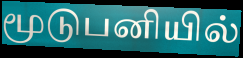
மூடுபனியில்